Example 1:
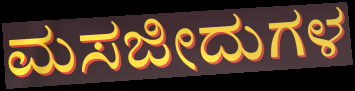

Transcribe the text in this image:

ಮಸಜೀದುಗಳ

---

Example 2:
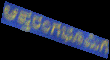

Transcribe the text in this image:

ಆಪ್ತರಂಗಭೂಮಿಗೆ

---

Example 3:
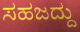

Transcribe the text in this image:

ಸಹಜದ್ದು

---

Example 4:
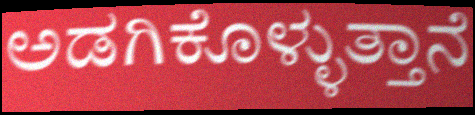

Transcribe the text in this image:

ಅಡಗಿಕೊಳ್ಳುತ್ತಾನೆ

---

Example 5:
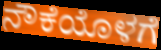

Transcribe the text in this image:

ನೌಕೆಯೊಳಗೆ